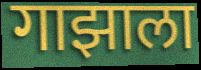
गाझाला